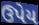
ઉપેય